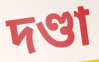
দণ্ডা